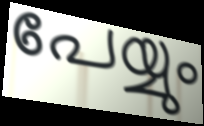
പേയ്യും